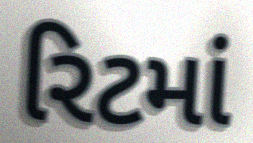
રિટમાં